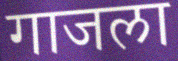
गाजला